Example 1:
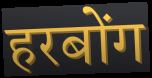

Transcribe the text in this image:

हरबोंग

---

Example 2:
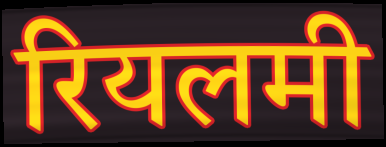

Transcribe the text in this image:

रियलमी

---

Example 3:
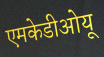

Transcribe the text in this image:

एमकेडीओयू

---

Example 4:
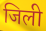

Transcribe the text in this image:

जिली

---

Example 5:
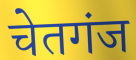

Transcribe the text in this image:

चेतगंज